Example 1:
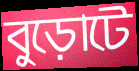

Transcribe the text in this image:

বুড়োটে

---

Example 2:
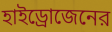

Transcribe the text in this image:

হাইড্রোজেনের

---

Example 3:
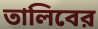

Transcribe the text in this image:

তালিবের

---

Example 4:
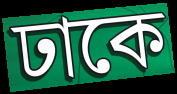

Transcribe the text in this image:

ঢাকে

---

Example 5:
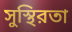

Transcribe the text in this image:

সুস্থিরতা